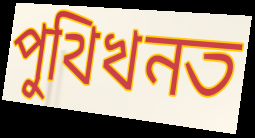
পুথিখনত